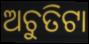
ଅଚୁତିଟା